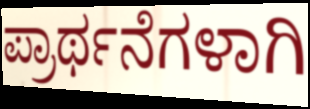
ಪ್ರಾರ್ಥನೆಗಳಾಗಿ